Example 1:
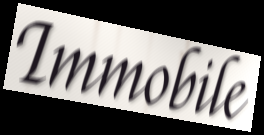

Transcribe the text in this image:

Immobile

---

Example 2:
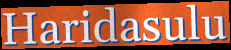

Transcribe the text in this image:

Haridasulu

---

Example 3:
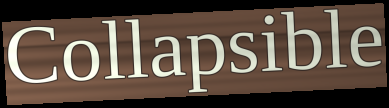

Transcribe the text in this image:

Collapsible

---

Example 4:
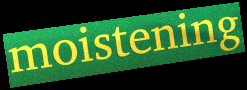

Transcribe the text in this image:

moistening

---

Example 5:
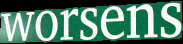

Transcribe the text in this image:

worsens